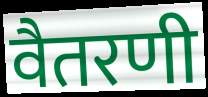
वैतरणी